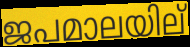
ജപമാലയില്